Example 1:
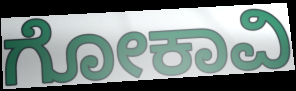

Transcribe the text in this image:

ಗೋಕಾವಿ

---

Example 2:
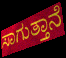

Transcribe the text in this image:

ಸಾಗುತ್ತಾನೆ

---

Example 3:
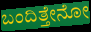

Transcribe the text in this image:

ಬಂದಿತ್ತೇನೋ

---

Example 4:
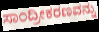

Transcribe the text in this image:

ಸಾಂದ್ರೀಕರಣವನ್ನು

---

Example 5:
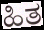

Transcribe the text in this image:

ಹಿತ